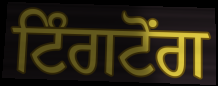
ਟਿੰਗਟੋਂਗ